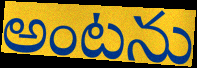
అంటను